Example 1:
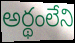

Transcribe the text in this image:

అర్థంలేని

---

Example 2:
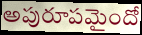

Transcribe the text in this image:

అపురూపమైందో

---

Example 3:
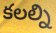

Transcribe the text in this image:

కలల్ని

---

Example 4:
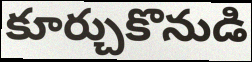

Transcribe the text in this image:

కూర్చుకొనుడి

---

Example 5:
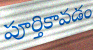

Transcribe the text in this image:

పూర్తికావడం